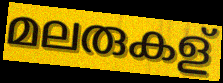
മലരുകള്